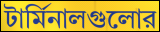
টার্মিনালগুলোর